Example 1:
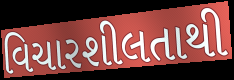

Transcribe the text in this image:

વિચારશીલતાથી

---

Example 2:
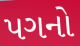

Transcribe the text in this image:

પગનો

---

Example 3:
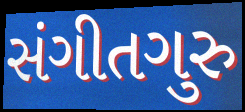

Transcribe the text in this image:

સંગીતગુરુ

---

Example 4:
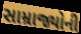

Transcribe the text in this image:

સામ્રાજ્યોની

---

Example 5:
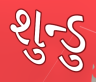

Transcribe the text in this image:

શુન્ડુ